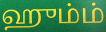
ஹும்ம்